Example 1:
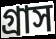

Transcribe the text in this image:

গ্ৰাস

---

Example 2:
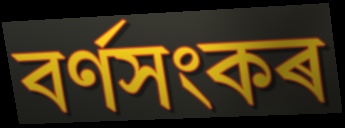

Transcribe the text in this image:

বৰ্ণসংকৰ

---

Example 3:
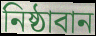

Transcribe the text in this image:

নিষ্ঠাবান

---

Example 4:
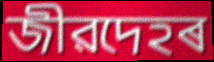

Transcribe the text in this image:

জীৱদেহৰ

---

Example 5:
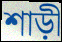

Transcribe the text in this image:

শাড়ী